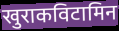
खुराकविटामिन